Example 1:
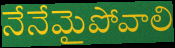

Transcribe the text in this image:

నేనేమైపోవాలి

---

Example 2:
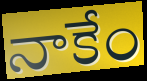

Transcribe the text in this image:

నాకేం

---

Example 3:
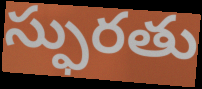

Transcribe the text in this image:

స్ఫురతు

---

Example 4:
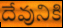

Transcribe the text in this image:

దేవునికి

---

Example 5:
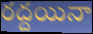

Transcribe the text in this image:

రద్దయినా